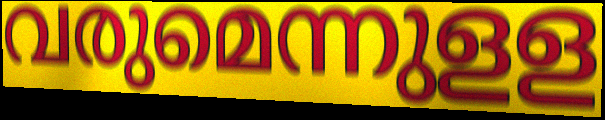
വരുമെന്നുളള